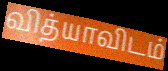
வித்யாவிடம்